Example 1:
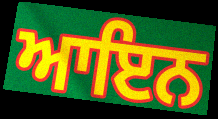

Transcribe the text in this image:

ਆਇਨ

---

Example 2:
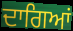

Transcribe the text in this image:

ਦਾਗਿਆਂ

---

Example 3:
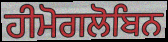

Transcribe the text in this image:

ਹੀਮੋਗਲੋਬਿਨ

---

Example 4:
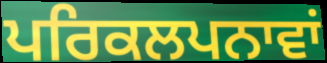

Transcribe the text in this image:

ਪਰਿਕਲਪਨਾਵਾਂ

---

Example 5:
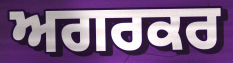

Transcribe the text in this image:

ਅਗਰਕਰ